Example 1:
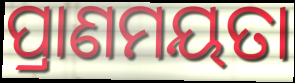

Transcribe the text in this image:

ପ୍ରାଣମୟତା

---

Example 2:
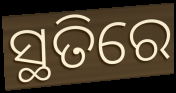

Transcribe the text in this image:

ସ୍ଥତିରେ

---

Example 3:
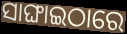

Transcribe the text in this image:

ସାଙ୍ଘାଇଠାରେ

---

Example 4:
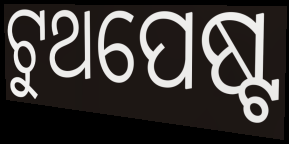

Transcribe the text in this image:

ଟୁଥପେଷ୍ଟ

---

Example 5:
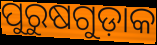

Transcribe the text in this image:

ପୁରୁଷଗୁଡ଼ାକ